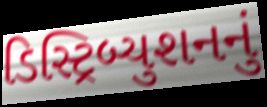
ડિસ્ટ્રિબ્યુશનનું